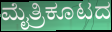
ಮೈತ್ರಿಕೂಟದ